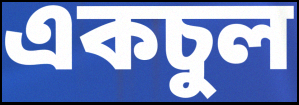
একচুল